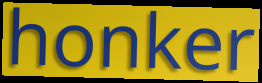
honker